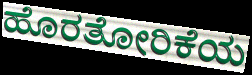
ಹೊರತೋರಿಕೆಯ